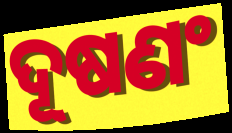
ଦୂଷଣଂ